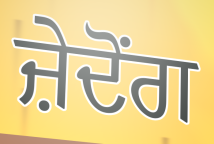
ਜ਼ੇਦੋਂਗ